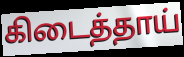
கிடைத்தாய்